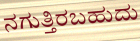
ನಗುತ್ತಿರಬಹುದು